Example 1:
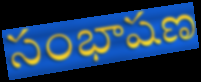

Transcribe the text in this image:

సంభాషణ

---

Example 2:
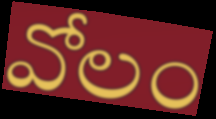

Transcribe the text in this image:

వోలం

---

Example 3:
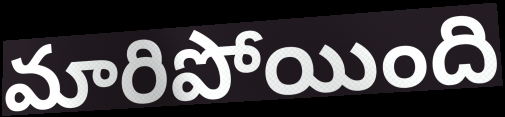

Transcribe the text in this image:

మారిపోయింది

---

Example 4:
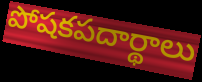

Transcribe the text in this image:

పోషకపదార్థాలు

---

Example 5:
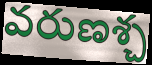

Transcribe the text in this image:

వరుణశ్చ